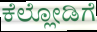
ಕೆಲ್ಲೋಡಿಗೆ